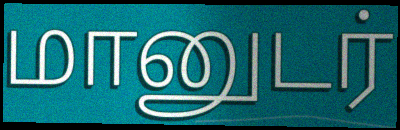
மானுடர்